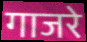
गाजरे